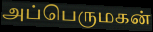
அப்பெருமகன்